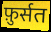
फ़ुर्सत